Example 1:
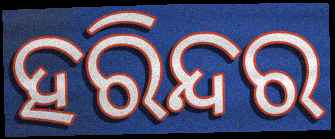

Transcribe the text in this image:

ହରିନ୍ଦର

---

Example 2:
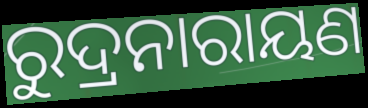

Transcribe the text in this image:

ରୁଦ୍ରନାରାୟଣ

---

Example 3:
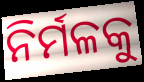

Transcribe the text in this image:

ନିର୍ମଳକୁ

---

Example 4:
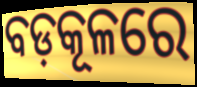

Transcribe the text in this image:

ବଡ଼କୂଳରେ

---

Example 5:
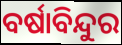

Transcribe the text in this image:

ବର୍ଷାବିନ୍ଦୁର